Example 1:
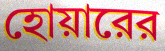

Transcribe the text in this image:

হোয়ারের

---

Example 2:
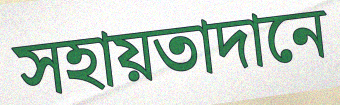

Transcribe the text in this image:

সহায়তাদানে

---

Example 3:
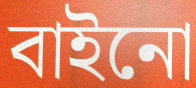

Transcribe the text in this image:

বাইনো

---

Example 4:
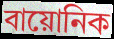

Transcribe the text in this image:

বায়োনিক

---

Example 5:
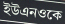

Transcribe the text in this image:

ইউএনওকে